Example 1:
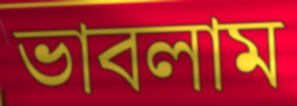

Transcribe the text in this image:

ভাবলাম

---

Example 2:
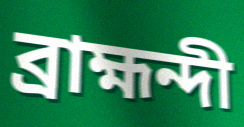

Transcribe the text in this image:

ব্রাহ্মন্দী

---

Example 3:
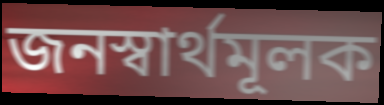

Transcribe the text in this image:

জনস্বার্থমূলক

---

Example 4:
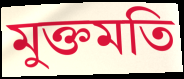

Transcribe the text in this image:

মুক্তমতি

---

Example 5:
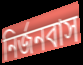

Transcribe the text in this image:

নির্জনবাস